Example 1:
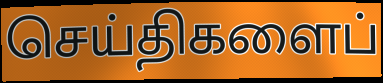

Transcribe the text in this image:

செய்திகளைப்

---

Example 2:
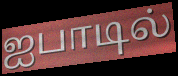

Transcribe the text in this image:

ஐபாடில்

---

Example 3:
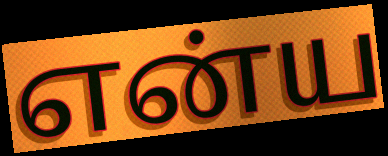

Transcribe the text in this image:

என்ய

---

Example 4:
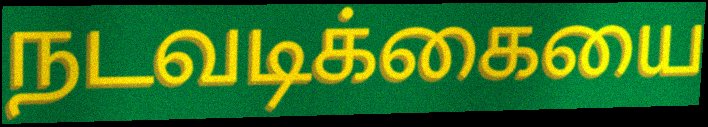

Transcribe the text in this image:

நடவடிக்கையை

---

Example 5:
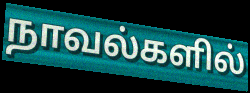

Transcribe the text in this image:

நாவல்களில்